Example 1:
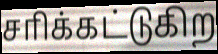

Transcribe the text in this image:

சரிக்கட்டுகிற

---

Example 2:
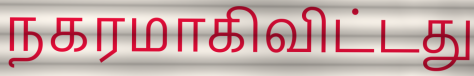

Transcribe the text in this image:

நகரமாகிவிட்டது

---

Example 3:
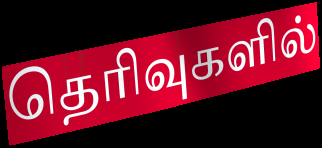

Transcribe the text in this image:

தெரிவுகளில்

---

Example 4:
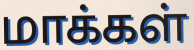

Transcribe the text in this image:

மாக்கள்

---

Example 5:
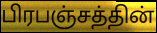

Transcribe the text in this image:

பிரபஞ்சத்தின்